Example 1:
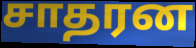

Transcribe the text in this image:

சாதரன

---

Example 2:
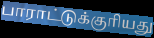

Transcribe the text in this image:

பாராட்டுக்குரியது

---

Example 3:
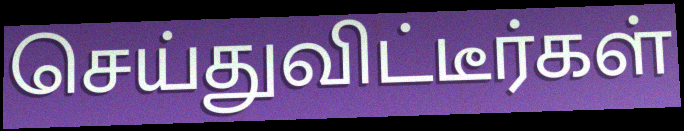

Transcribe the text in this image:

செய்துவிட்டீர்கள்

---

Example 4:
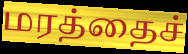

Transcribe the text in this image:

மரத்தைச்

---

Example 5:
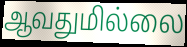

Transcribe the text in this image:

ஆவதுமில்லை